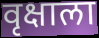
वृक्षाला